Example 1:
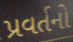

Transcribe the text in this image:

પ્રવર્તનો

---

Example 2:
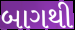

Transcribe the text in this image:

બાગથી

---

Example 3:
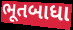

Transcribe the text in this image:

ભૂતબાધા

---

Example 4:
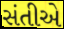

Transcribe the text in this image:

સંતીએ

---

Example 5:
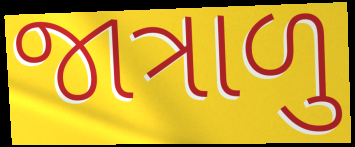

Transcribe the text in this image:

જાત્રાળુ